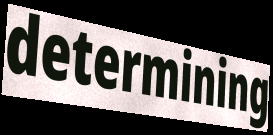
determining